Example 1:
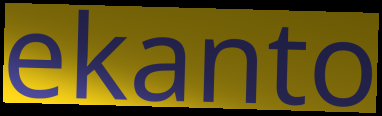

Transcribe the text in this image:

ekanto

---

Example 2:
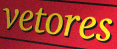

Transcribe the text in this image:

vetores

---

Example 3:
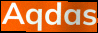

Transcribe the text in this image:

Aqdas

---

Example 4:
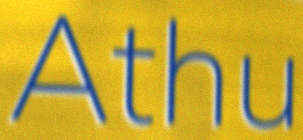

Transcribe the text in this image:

Athu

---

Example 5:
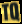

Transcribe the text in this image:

TQ